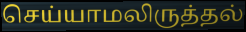
செய்யாமலிருத்தல்